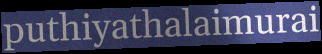
puthiyathalaimurai